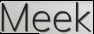
Meek